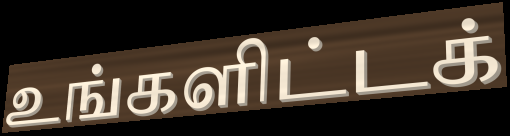
உங்களிட்டக்